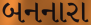
બનનારા